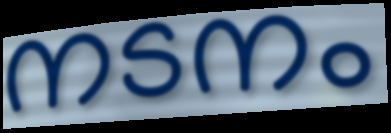
നടനം